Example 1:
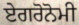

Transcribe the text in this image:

ਏਗਰੋਨੋਮੀ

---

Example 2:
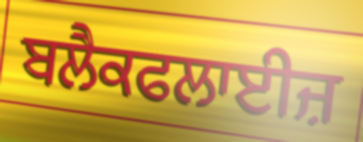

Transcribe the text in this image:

ਬਲੈਕਫਲਾਈਜ਼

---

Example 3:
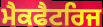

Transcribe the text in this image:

ਮੈਕਫੈਟਰਿਜ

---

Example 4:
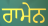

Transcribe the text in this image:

ਰਾਮੇਨ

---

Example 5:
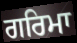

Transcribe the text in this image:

ਗਰਿਮਾ